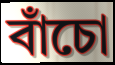
বাঁচো